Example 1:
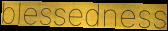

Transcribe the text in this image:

blessedness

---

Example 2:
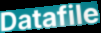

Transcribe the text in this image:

Datafile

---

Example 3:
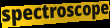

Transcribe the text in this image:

spectroscope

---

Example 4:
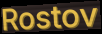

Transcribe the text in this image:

Rostov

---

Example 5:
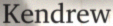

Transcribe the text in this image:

Kendrew